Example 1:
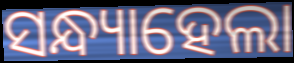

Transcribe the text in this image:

ସନ୍ଧ୍ୟାହେଲା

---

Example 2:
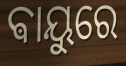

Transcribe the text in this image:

ଵାୟୁରେ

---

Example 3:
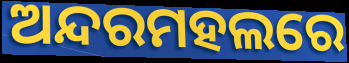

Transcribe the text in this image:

ଅନ୍ଦରମହଲରେ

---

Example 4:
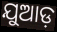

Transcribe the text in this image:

ଯୁଆଡ଼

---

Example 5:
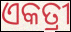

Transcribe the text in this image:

ଏକତ୍ରୀ